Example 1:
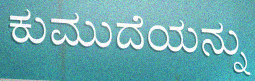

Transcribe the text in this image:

ಕುಮುದೆಯನ್ನು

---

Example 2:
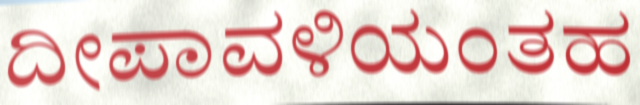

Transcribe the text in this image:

ದೀಪಾವಳಿಯಂತಹ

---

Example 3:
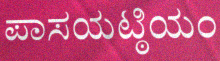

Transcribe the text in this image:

ಪಾಸಯಟ್ಠಿಯಂ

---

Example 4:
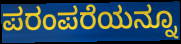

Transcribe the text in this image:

ಪರಂಪರೆಯನ್ನೂ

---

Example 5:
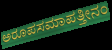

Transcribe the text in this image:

ಅರೂಪಸಮಾಪತ್ತೀನಂ